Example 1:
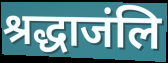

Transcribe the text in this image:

श्रद्धाजंलि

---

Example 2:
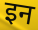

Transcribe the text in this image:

इन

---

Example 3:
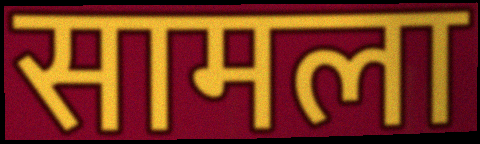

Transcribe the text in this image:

सामला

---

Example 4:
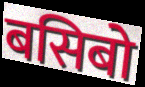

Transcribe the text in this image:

बसिबो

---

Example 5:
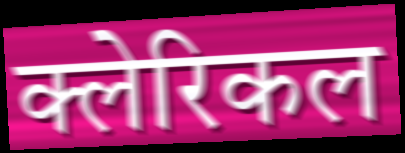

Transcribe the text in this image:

क्लेरिकल